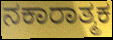
ನಕಾರಾತ್ಮಕ